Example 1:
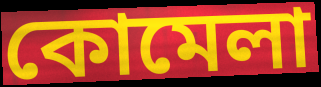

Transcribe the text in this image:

কোমেলা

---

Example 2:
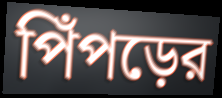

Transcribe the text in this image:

পিঁপড়ের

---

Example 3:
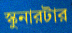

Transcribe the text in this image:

স্কুনারটার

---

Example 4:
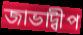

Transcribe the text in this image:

জাভাদ্বীপ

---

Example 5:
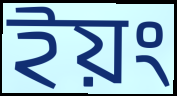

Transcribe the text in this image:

ইয়ং